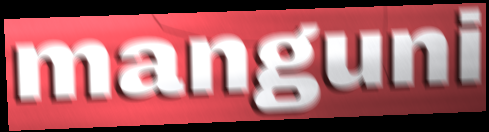
manguni